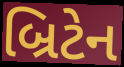
બ્રિટેન